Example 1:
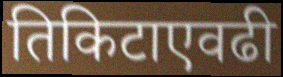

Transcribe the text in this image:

तिकिटाएवढी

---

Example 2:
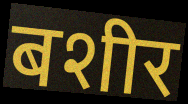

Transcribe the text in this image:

बशीर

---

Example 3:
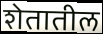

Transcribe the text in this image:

शेतातील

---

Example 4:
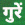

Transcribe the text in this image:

गुरें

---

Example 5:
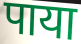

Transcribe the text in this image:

पाया